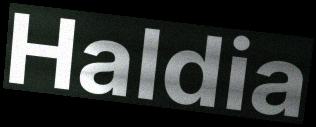
Haldia